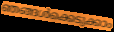
ഞങ്ങൾക്കെടുക്കാം